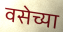
वसेच्या